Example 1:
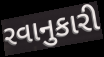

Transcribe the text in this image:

રવાનુકારી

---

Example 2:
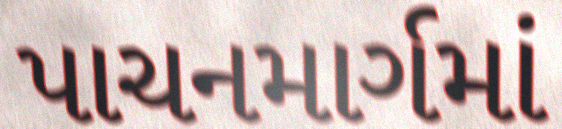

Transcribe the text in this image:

પાચનમાર્ગમાં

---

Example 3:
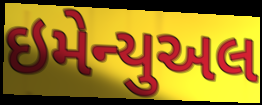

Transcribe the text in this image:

ઇમેન્યુઅલ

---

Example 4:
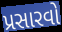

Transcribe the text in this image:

પ્રસારવો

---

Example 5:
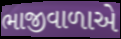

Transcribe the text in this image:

ભાજીવાળાએ